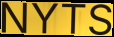
NYTS